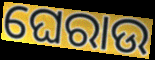
ଘେରାଉ